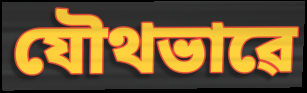
যৌথভাৱে